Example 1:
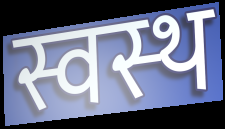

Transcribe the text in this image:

स्वस्थ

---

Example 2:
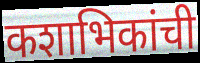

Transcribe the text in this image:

कशाभिकांची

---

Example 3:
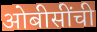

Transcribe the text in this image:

ओबीसींची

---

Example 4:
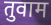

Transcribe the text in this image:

तुवाम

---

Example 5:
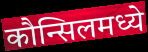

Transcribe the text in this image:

कौन्सिलमध्ये